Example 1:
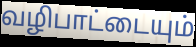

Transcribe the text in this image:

வழிபாட்டையும்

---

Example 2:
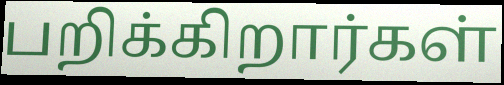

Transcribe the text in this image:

பறிக்கிறார்கள்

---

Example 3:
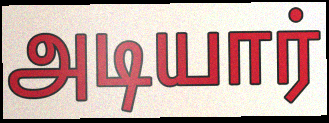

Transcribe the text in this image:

அடியார்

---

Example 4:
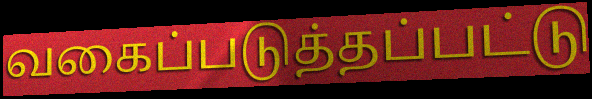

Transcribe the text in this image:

வகைப்படுத்தப்பட்டு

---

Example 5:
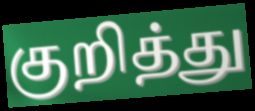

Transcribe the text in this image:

குறித்து